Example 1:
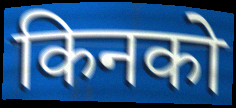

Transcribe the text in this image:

किनको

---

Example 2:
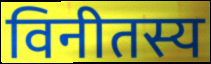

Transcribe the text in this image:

विनीतस्य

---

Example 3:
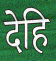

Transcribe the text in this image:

देहि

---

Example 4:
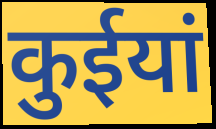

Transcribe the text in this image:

कुईयां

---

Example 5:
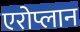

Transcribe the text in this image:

एरोप्लान